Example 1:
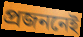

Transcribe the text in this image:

প্রজননেই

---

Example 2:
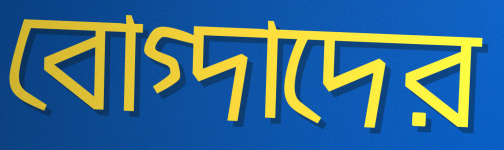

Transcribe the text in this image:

বোগ্দাদের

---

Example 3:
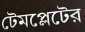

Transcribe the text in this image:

টেমপ্লেটের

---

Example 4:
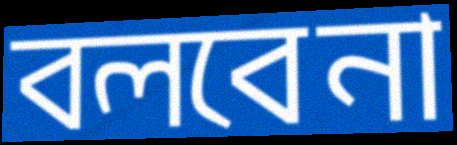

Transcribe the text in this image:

বলবেনা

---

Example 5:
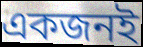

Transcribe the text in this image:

একজনই